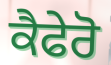
ਕੈਫੇਰੋ